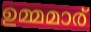
ഉമ്മമാര്